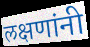
लक्षणांनी